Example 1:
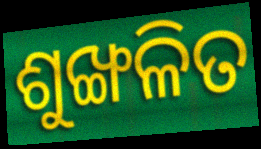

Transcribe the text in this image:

ଶୁଙ୍ଖଳିତ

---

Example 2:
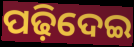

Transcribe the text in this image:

ପଢ଼ିଦେଇ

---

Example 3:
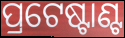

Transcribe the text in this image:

ପ୍ରଟେଷ୍ଟାଣ୍ଟ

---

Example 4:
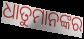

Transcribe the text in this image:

ଧାତୁମାନଙ୍କର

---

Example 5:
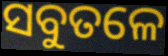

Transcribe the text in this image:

ସବୁତଳେ